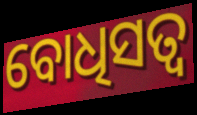
ବୋଧିସତ୍ବ